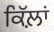
ਕਿੱਲ਼ਾਂ